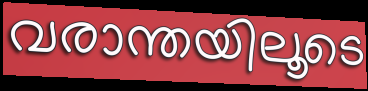
വരാന്തയിലൂടെ